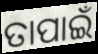
ତାପାଇଁ